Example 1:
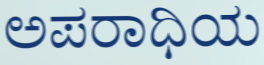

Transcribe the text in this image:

ಅಪರಾಧಿಯ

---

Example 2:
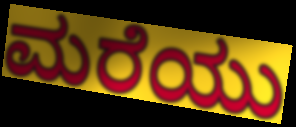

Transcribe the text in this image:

ಮರೆಯು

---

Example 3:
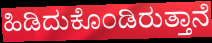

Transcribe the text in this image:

ಹಿಡಿದುಕೊಂಡಿರುತ್ತಾನೆ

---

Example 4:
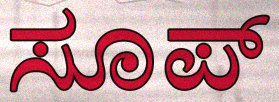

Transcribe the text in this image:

ಸೂಪ್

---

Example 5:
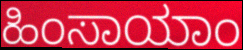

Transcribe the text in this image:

ಹಿಂಸಾಯಾಂ